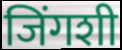
जिंगशी